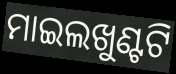
ମାଇଲଖୁଣ୍ଟଟି